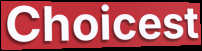
Choicest